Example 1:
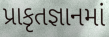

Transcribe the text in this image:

પ્રાકૃતજ્ઞાનમાં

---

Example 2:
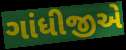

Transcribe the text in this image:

ગાંધીજીએ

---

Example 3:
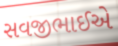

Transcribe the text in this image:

સવજીભાઈએ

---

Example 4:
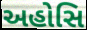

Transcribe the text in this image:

અહોસિ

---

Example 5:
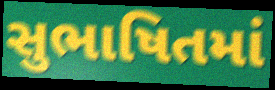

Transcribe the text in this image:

સુભાષિતમાં